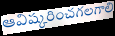
ఆవిష్కరించగలగాలి